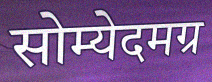
सोम्येदमग्र